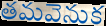
తమవెనుక